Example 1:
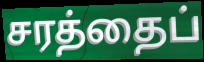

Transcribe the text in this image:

சரத்தைப்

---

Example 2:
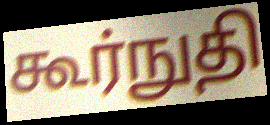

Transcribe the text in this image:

கூர்நுதி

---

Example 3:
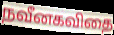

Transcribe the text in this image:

நவீனகவிதை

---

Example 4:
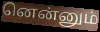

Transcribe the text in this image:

னென்னும்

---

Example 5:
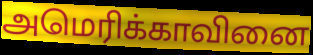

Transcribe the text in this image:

அமெரிக்காவினை